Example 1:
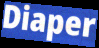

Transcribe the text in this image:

Diaper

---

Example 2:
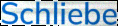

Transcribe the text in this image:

Schliebe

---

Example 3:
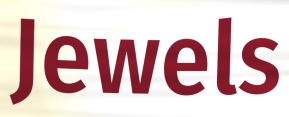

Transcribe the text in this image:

Jewels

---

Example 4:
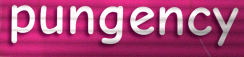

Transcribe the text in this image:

pungency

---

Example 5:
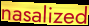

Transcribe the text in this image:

nasalized